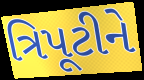
ત્રિપૂટીને